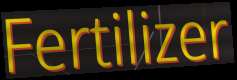
Fertilizer